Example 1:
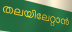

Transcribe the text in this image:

തലയിലേറ്റാൻ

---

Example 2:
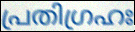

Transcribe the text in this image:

പ്രതിഗ്രഹഃ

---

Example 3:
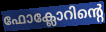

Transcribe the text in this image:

ഫോക്ലോറിന്റെ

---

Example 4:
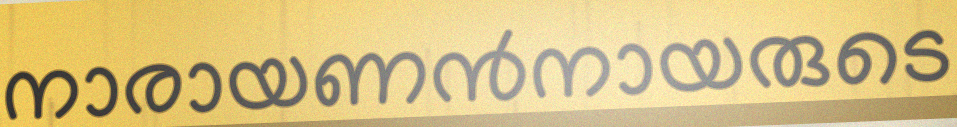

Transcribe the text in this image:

നാരായണൻനായരുടെ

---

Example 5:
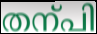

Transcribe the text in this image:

തന്പി